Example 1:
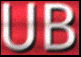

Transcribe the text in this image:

UB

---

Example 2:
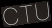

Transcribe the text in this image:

CTU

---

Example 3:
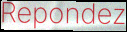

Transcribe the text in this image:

Repondez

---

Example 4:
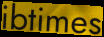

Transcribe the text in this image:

ibtimes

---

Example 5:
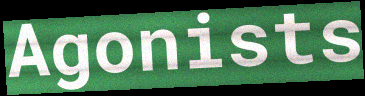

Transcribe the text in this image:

Agonists